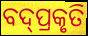
ବଦ୍‌ପ୍ରକୃତି